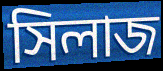
সিলাজ